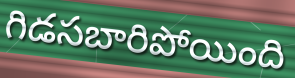
గిడసబారిపోయింది